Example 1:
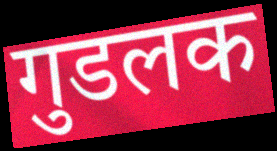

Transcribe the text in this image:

गुडलक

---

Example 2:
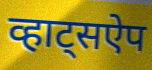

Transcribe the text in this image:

व्हाट्सऐप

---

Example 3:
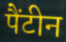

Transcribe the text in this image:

पैंटीन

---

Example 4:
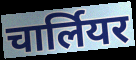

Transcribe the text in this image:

चार्लियर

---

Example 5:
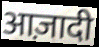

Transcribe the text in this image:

आज़ादी